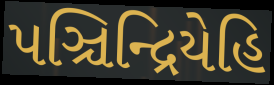
પઞ્ચિન્દ્રિયેહિ